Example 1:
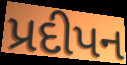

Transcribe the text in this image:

પ્રદીપન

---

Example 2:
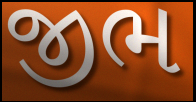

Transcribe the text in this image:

જીભ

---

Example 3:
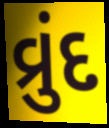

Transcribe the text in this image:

વ્રુંદ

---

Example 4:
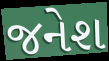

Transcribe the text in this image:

જનેશ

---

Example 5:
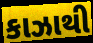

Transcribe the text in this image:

કાઝાથી